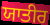
ਯਾਤੀਰ